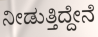
ನೀಡುತ್ತಿದ್ದೇನೆ